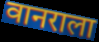
वानराला